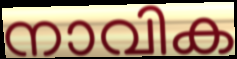
നാവിക